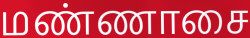
மண்ணாசை